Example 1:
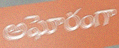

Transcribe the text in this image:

అఘోరంగా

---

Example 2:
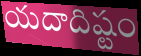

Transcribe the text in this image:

యదాదిష్టం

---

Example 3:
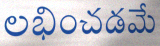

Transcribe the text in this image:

లభించడమే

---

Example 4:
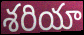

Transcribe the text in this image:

శరియా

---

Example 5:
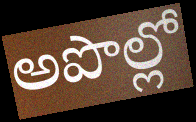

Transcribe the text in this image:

అపొల్లో